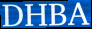
DHBA